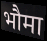
भौमा